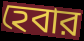
হেবার